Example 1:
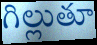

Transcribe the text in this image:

గిల్లుతూ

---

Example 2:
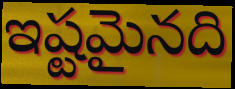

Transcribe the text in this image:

ఇష్టమైనది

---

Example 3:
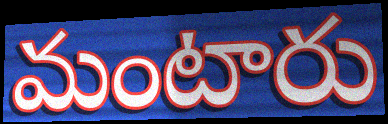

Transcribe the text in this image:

మంటారు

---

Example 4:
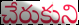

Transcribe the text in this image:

చేరుకుని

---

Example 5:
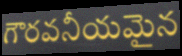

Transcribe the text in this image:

గౌరవనీయమైన